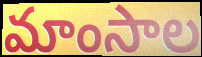
మాంసాల